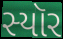
સ્યૉર